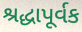
શ્રદ્ધાપૂર્વક